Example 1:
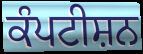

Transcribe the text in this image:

ਕੰਪਟੀਸ਼ਨ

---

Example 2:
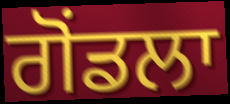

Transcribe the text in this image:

ਗੋਂਡਲਾ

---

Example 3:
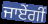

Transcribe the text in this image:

ਜਾਏਂਗੀਂ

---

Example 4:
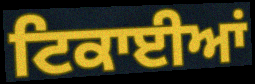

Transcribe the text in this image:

ਟਿਕਾਈਆਂ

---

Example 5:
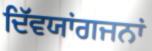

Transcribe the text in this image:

ਦਿੱਵਯਾਂਗਜਨਾਂ